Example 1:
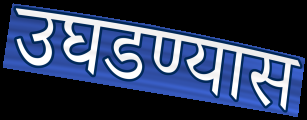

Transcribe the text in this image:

उघडण्यास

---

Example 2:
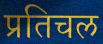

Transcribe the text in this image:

प्रतिचल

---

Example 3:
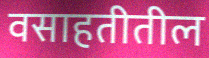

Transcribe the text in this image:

वसाहतीतील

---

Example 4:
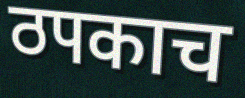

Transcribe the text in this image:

ठपकाच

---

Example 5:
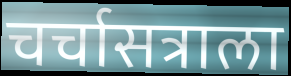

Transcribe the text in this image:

चर्चासत्राला